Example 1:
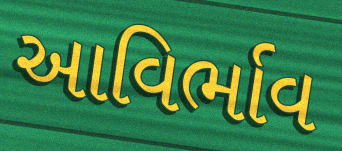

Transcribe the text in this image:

આવિર્ભાવ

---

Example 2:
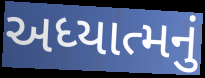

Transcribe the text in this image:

અધ્યાત્મનું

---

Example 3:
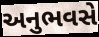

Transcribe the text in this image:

અનુભવસે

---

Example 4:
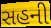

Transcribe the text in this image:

સહની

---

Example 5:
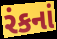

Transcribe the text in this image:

રંકનાં